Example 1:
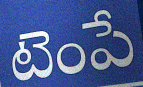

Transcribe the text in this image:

టెంపే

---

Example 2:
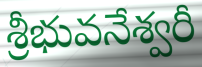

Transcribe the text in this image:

శ్రీభువనేశ్వరీ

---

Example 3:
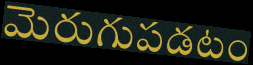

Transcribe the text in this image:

మెరుగుపడటం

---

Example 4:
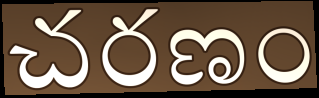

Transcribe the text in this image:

చరణం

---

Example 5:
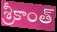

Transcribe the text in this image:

శ్రీకాంత్